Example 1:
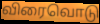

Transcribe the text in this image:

விரைவொடு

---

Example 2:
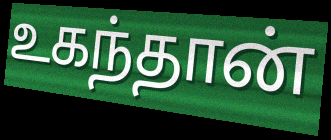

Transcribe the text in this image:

உகந்தான்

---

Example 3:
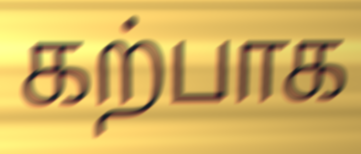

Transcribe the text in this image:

கற்பாக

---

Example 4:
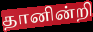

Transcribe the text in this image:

தானின்றி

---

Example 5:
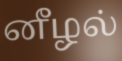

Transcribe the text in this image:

னீழல்